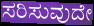
ಸರಿಸುವುದೇ